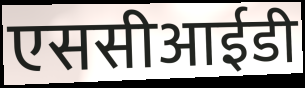
एससीआईडी